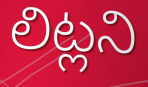
లిట్లని